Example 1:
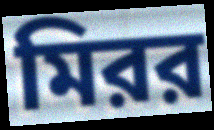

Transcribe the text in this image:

মিরর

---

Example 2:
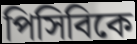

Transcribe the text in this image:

পিসিবিকে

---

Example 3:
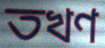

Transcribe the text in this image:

তখণ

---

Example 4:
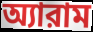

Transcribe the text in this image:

অ্যারাম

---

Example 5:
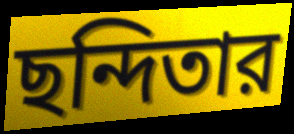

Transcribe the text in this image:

ছন্দিতার